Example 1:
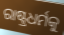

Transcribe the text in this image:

ରାଷ୍ଟ୍ରଧର୍ମକୁ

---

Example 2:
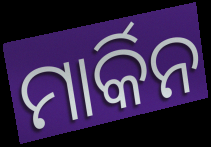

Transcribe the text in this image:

ମାର୍କିନ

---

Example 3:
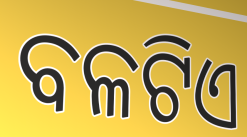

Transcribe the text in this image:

ବଳଟିଏ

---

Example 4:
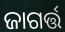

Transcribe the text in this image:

ଜାଗର୍ତ୍ତ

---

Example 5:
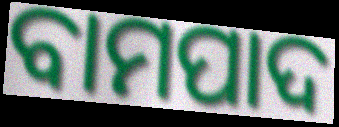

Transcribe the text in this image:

ବାମପାଦ